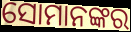
ସୋମାନଙ୍କର